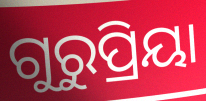
ଗୁରୁପ୍ରିୟା